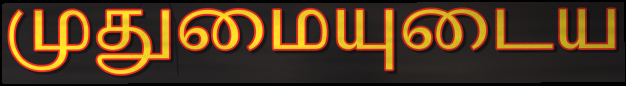
முதுமையுடைய